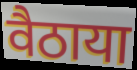
वैठाया